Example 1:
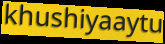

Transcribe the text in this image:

khushiyaaytu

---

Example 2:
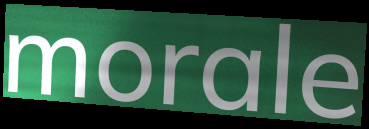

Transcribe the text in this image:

morale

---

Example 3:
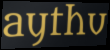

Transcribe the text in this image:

aythu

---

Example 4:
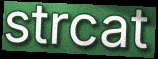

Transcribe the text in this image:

strcat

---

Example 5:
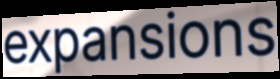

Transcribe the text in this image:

expansions